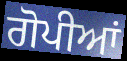
ਗੋਪੀਆਂ